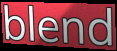
blend